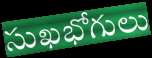
సుఖభోగులు